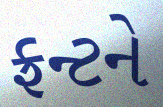
ફ્રન્ટને